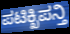
ಪಟಿಕ್ಖಿಪನ್ತಿ